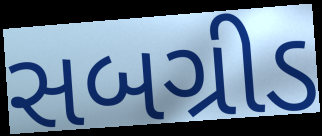
સબગ્રીડ